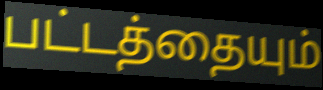
பட்டத்தையும்